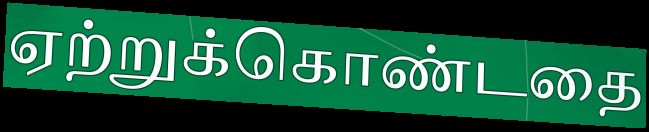
ஏற்றுக்கொண்டதை